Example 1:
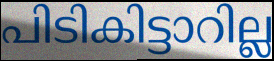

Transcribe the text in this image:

പിടികിട്ടാറില്ല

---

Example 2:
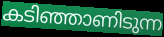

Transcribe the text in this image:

കടിഞ്ഞാണിടുന്ന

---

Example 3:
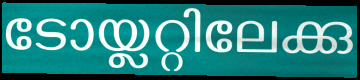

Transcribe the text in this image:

ടോയ്ലറ്റിലേക്കു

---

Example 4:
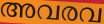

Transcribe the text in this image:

അവരവ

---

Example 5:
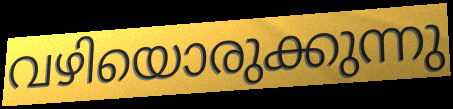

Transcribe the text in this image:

വഴിയൊരുക്കുന്നു